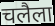
चलैला